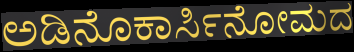
ಅಡಿನೊಕಾರ್ಸಿನೋಮದ